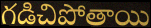
గడిచిపోతాయి